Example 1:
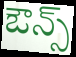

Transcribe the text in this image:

ఔన్స్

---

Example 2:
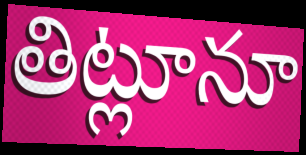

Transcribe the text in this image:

తిట్లూనూ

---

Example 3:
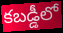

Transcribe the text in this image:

కబడ్డీలో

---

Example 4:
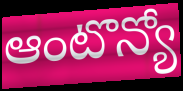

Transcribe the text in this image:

ఆంటొన్యో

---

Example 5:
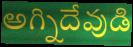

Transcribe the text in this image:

అగ్నిదేవుడి